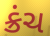
ક્રંચ